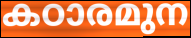
കഠാരമുന